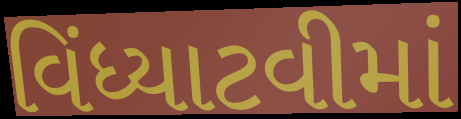
વિંધ્યાટવીમાં